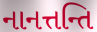
નાનત્તન્તિ